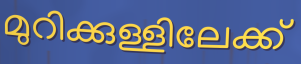
മുറിക്കുള്ളിലേക്ക്